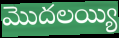
మొదలయ్యి